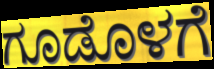
ಗೂಡೊಳಗೆ